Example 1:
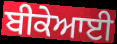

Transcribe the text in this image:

ਬੀਕੇਆਈ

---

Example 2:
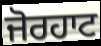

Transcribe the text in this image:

ਜੋਰਹਾਟ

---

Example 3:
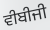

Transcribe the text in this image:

ਵੀਬੀਜੀ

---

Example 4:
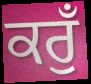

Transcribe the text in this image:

ਕਰੁਁ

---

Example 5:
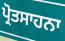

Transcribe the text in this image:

ਪ੍ਰੋਤਸਾਹਨਾ